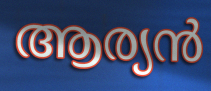
ആര്യൻ